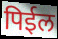
पिईल